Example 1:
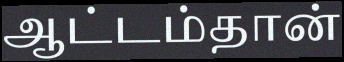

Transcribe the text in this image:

ஆட்டம்தான்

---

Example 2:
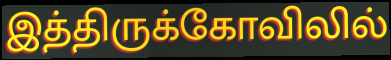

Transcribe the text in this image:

இத்திருக்கோவிலில்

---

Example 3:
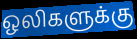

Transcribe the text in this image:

ஒலிகளுக்கு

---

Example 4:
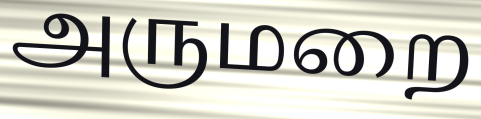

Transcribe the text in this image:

அருமறை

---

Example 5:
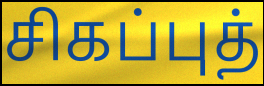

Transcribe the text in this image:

சிகப்புத்